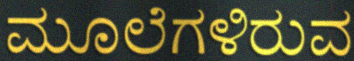
ಮೂಲೆಗಳಿರುವ